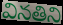
వినతిని